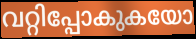
വറ്റിപ്പോകുകയോ